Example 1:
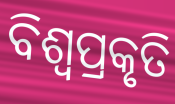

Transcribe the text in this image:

ବିଶ୍ଵପ୍ରକୃତି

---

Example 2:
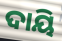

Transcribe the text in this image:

ଦାୟି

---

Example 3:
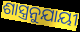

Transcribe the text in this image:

ଶାସ୍ତ୍ରନୁଯାୟୀ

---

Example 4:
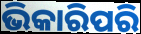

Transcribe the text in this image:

ଭିକାରିପରି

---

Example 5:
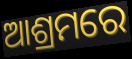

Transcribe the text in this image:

ଆଶ୍ରମରେ